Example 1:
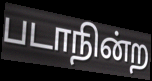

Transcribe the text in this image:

படாநின்ற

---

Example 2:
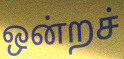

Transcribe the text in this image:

ஒன்றச்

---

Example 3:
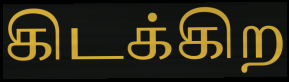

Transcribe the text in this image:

கிடக்கிற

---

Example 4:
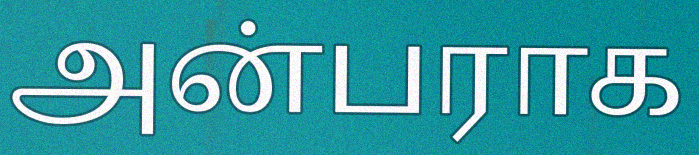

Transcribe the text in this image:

அன்பராக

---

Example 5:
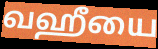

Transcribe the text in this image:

வஹீயை